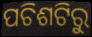
ପଚିଶଟିରୁ